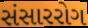
સંસારરોગ